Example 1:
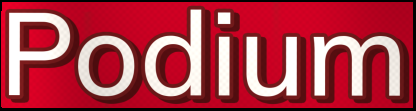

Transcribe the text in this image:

Podium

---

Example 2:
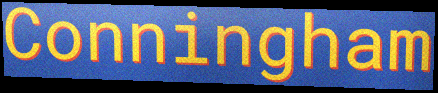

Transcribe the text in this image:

Conningham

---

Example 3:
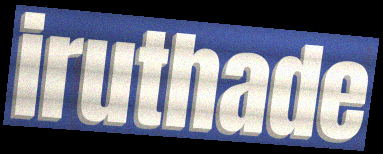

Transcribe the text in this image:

iruthade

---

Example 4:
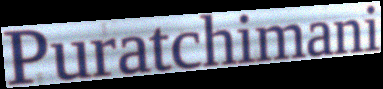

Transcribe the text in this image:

Puratchimani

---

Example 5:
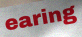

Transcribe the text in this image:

earing